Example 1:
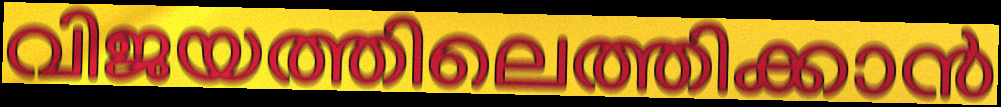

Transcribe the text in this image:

വിജയത്തിലെത്തിക്കാൻ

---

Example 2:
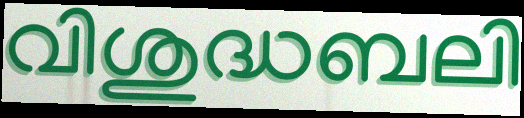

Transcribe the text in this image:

വിശുദ്ധബലി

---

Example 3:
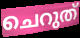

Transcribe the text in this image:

ചെറുത്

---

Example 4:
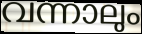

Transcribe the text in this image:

വന്നാലും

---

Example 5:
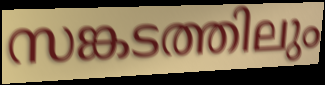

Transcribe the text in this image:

സങ്കടത്തിലും